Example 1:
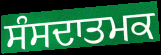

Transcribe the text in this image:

ਸੰਸਦਾਤਮਕ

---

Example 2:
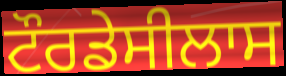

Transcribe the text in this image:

ਟੌਰਡੇਸੀਲਾਸ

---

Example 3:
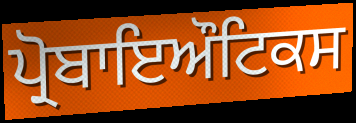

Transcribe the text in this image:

ਪ੍ਰੋਬਾਇਔਟਿਕਸ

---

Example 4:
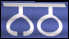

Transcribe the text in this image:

ਨਠ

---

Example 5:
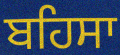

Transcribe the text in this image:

ਬਹਿਸਾ